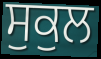
ਸੁਕੁਲ